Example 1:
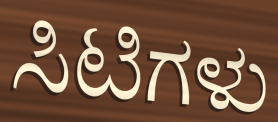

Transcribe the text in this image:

ಸಿಟಿಗಳು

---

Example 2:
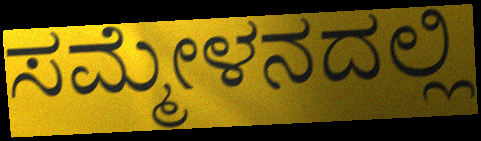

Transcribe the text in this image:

ಸಮ್ಮೇಳನದಲ್ಲಿ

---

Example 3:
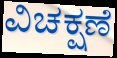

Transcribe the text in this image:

ವಿಚಕ್ಷಣೆ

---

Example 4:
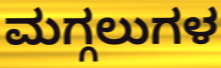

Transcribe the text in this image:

ಮಗ್ಗಲುಗಳ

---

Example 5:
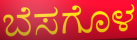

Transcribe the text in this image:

ಬೆಸಗೊಳ